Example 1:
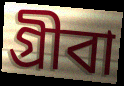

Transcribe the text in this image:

গ্রীবা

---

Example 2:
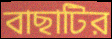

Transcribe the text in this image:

বাছাটির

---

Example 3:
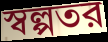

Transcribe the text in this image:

স্বল্পতর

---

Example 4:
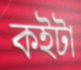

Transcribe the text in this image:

কইটা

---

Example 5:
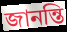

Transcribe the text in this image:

জানন্তি